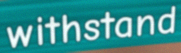
withstand